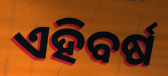
ଏହିବର୍ଷ